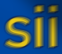
sii